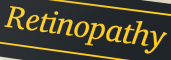
Retinopathy